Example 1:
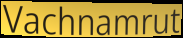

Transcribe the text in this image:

Vachnamrut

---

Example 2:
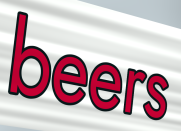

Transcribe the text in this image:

beers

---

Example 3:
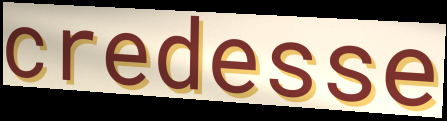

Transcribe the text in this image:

credesse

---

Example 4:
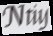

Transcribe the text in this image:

Ntiy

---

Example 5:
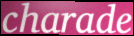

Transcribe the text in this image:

charade